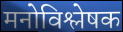
मनोविश्लेषक